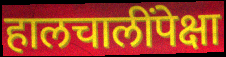
हालचालींपेक्षा